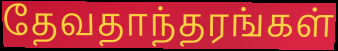
தேவதாந்தரங்கள்